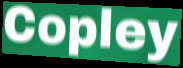
Copley